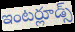
ఇంటర్లూడ్స్